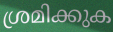
ശ്രമിക്കുക